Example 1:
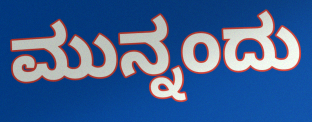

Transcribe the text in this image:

ಮುನ್ನಂದು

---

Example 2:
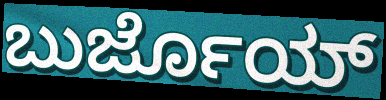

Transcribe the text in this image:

ಬುರ್ಜೊಯ್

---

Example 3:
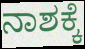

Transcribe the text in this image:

ನಾಶಕ್ಕೆ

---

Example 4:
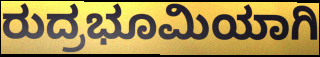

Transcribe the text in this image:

ರುದ್ರಭೂಮಿಯಾಗಿ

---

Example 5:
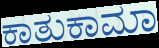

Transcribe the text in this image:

ಕಾತುಕಾಮಾ